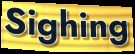
Sighing